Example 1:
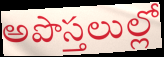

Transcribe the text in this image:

అపొస్తలుల్లో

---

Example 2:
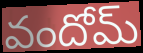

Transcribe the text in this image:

వందోమ్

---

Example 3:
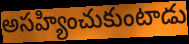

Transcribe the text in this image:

అసహ్యించుకుంటాడు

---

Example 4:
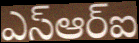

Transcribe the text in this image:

ఎస్ఆర్ఐ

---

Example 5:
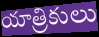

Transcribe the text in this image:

యాత్రికులు